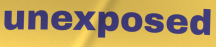
unexposed